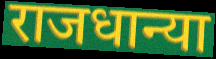
राजधान्या